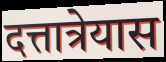
दत्तात्रेयास